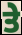
ਤੇ